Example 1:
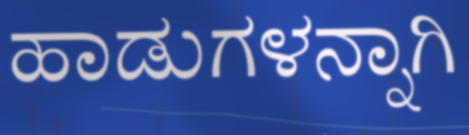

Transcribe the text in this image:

ಹಾಡುಗಳನ್ನಾಗಿ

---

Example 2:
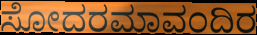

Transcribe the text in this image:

ಸೋದರಮಾವಂದಿರ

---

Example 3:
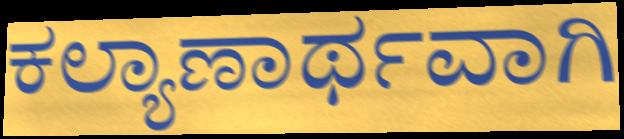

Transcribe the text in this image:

ಕಲ್ಯಾಣಾರ್ಥವಾಗಿ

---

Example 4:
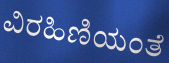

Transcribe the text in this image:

ವಿರಹಿಣಿಯಂತೆ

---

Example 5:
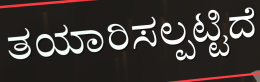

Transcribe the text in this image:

ತಯಾರಿಸಲ್ಪಟ್ಟಿದೆ